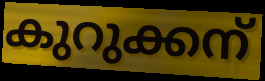
കുറുക്കന്